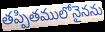
తప్పితములోనైనను